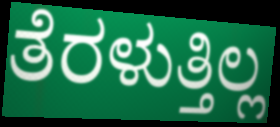
ತೆರಳುತ್ತಿಲ್ಲ